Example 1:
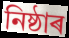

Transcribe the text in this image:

নিষ্ঠাৰ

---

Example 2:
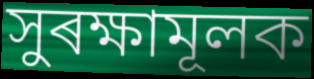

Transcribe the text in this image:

সুৰক্ষামূলক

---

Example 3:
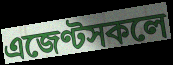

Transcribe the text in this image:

এজেণ্টসকলে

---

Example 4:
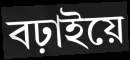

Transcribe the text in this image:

বঢ়াইয়ে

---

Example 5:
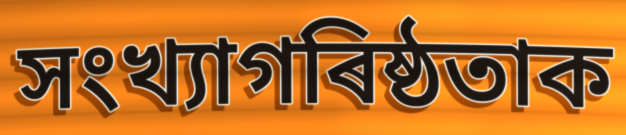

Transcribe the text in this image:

সংখ্যাগৰিষ্ঠতাক